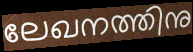
ലേഖനത്തിനു